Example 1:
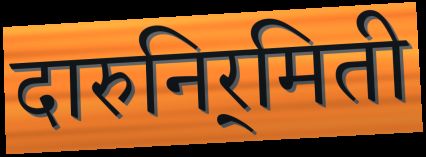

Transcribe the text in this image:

दारुनिर्मिती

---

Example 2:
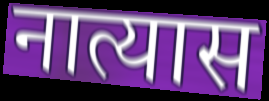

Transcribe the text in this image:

नात्यास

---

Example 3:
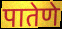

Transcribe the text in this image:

पातेणे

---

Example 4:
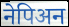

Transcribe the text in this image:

नेपिअन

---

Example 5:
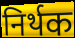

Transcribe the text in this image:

निर्थक